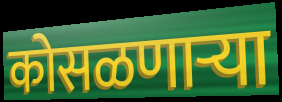
कोसळणार्‍या